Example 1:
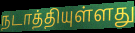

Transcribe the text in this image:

நடாத்தியுள்ளது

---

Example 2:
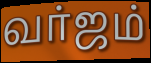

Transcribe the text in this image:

வர்ஜம்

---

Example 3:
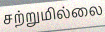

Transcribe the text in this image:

சற்றுமில்லை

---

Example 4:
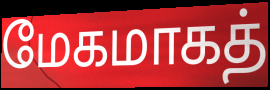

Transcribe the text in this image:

மேகமாகத்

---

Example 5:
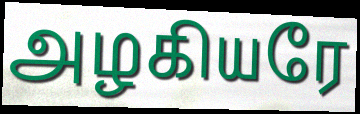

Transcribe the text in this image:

அழகியரே